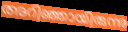
അറിഞ്ഞായിരുന്നു